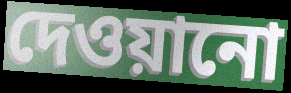
দেওয়ানো